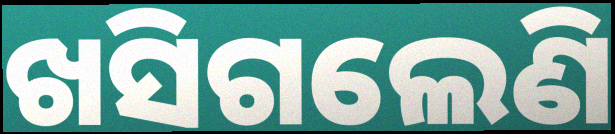
ଖସିଗଲେଣି